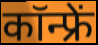
कॉन्फ्रें